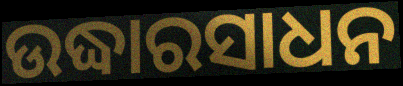
ଉଦ୍ଧାରସାଧନ